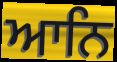
ਆਨਿ